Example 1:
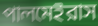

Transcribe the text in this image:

পালমেইরাস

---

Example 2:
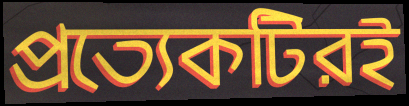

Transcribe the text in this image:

প্রত্যেকটিরই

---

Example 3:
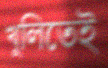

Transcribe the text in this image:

খুলিতেই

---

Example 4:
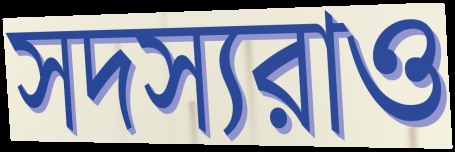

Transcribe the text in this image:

সদস্যরাও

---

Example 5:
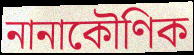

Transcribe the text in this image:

নানাকৌণিক